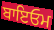
ਬਾਇਓਮ